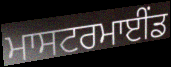
ਮਾਸਟਰਮਾਈੰਡ